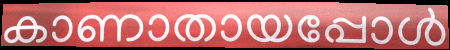
കാണാതായപ്പോൾ